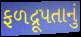
ફળદ્રૂપતાનું